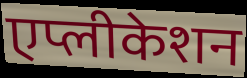
एप्लीकेशन